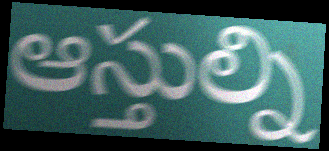
ఆస్తుల్ని